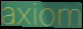
axiom